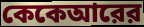
কেকেআরের